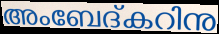
അംബേദ്കറിനു